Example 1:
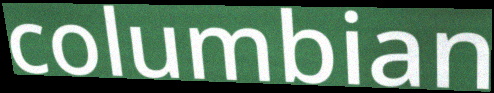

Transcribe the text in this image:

columbian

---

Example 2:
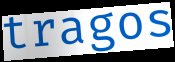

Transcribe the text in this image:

tragos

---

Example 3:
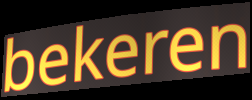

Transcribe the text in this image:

bekeren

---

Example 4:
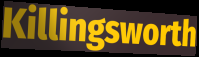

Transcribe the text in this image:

Killingsworth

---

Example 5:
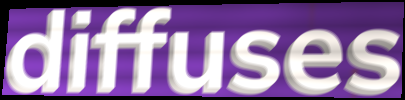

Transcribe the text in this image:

diffuses